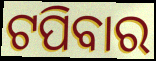
ଟପିବାର